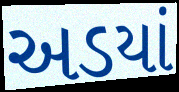
અડયાં